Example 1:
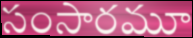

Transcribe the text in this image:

సంసారమూ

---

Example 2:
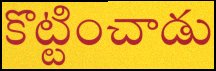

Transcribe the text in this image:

కొట్టించాడు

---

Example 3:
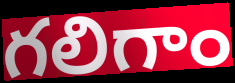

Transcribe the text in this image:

గలిగాం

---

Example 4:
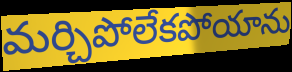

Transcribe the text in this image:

మర్చిపోలేకపోయాను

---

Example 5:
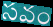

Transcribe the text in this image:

సవం